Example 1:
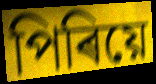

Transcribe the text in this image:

পিৰিয়ে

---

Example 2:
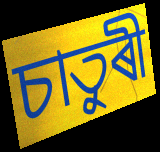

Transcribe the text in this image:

চাতুৰী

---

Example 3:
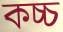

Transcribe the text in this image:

কচ্চ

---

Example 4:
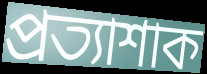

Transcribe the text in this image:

প্ৰত্যাশাক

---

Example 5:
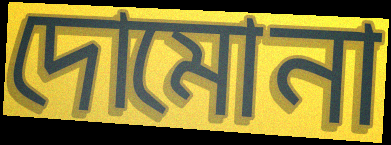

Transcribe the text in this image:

দোমোনা